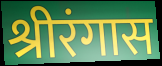
श्रीरंगास